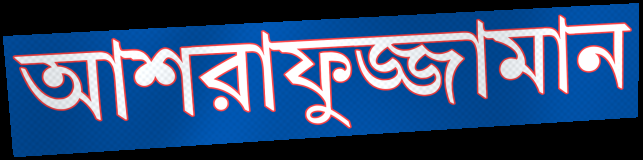
আশরাফুজ্জামান